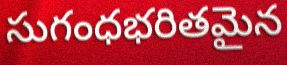
సుగంధభరితమైన